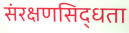
संरक्षणसिद्धता